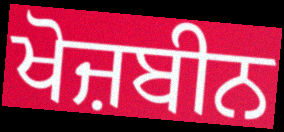
ਖੋਜ਼ਬੀਨ